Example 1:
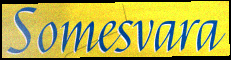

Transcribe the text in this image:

Somesvara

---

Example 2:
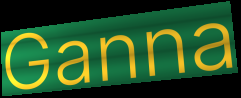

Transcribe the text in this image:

Ganna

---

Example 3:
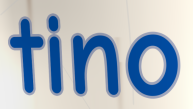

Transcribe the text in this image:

tino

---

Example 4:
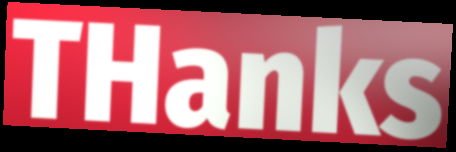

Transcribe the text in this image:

THanks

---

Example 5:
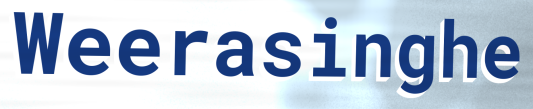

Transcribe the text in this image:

Weerasinghe